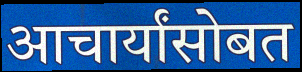
आचार्यांसोबत